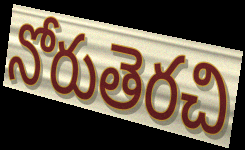
నోరుతెరచి